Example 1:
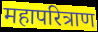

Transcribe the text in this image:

महापरित्राण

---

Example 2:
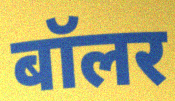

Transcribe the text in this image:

बॉलर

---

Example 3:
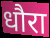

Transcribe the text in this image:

धौरा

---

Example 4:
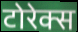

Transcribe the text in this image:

टोरेक्स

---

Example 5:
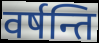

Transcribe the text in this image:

वर्षन्ति